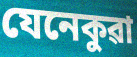
যেনেকুৱা